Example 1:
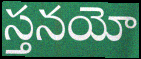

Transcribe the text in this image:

స్తనయో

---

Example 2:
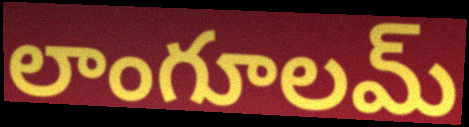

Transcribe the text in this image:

లాంగూలమ్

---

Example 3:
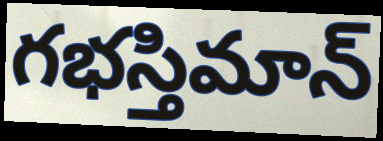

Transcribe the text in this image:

గభస్తిమాన్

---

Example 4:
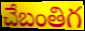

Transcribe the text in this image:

చేబంతిగ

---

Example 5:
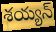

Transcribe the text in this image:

శయ్యన్